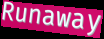
Runaway